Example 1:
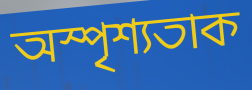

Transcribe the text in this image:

অস্পৃশ্যতাক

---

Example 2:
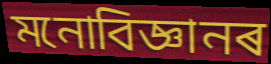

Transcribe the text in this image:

মনোবিজ্ঞানৰ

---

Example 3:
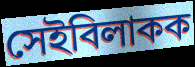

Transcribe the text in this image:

সেইবিলাকক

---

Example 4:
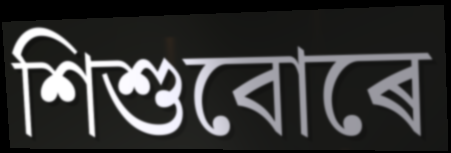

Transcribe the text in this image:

শিশুবোৰে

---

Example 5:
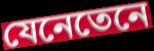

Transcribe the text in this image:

যেনেতেনে